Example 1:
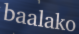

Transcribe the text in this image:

baalako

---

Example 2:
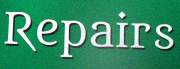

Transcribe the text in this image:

Repairs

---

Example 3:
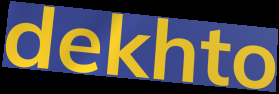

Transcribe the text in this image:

dekhto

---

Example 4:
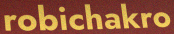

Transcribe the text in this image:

robichakro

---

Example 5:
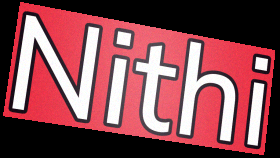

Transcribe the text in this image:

Nithi